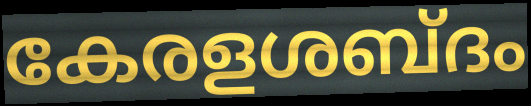
കേരളശബ്ദം